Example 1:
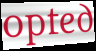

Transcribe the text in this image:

opted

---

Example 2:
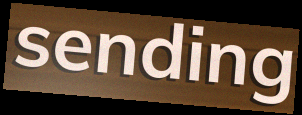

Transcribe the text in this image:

sending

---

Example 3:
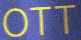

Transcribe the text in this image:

OTT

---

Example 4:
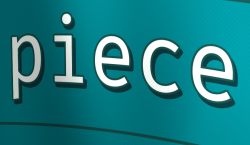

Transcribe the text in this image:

piece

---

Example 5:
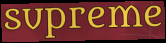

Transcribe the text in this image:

supreme